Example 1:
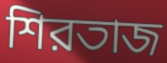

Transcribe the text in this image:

শিরতাজ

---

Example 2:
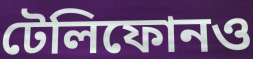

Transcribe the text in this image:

টেলিফোনও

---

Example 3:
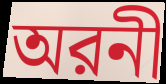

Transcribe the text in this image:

অরনী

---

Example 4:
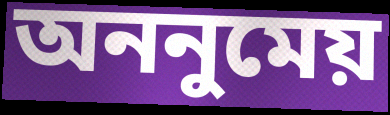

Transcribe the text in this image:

অননুমেয়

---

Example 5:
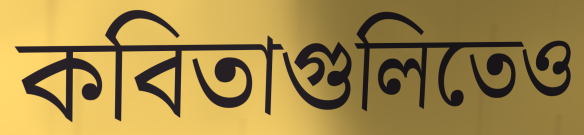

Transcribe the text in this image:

কবিতাগুলিতেও